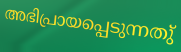
അഭിപ്രായപ്പെടുന്നതു്